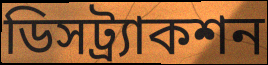
ডিসট্র্যাকশন